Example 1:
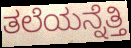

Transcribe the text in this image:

ತಲೆಯನ್ನೆತ್ತಿ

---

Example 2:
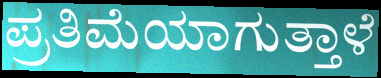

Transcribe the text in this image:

ಪ್ರತಿಮೆಯಾಗುತ್ತಾಳೆ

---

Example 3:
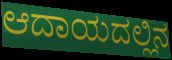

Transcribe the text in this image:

ಆದಾಯದಲ್ಲಿನ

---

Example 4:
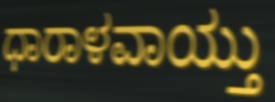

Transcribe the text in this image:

ಧಾರಾಳವಾಯ್ತು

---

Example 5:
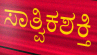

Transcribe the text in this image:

ಸಾತ್ವಿಕಶಕ್ತಿ